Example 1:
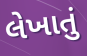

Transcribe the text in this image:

લેખાતું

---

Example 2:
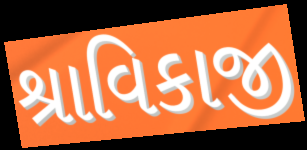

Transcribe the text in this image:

શ્રાવિકાજી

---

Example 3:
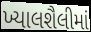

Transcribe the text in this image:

ખ્યાલશૈલીમાં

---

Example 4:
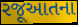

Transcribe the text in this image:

રજૂઆતના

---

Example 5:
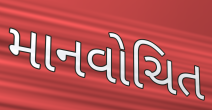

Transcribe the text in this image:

માનવોચિત